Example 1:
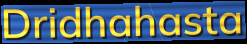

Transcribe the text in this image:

Dridhahasta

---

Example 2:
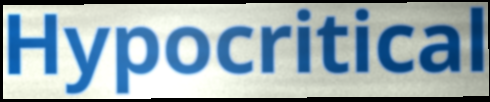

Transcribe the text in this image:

Hypocritical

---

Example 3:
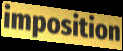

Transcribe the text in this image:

imposition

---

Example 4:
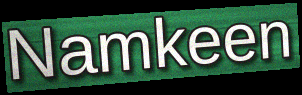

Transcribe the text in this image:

Namkeen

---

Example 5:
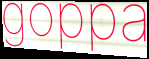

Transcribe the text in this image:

goppa